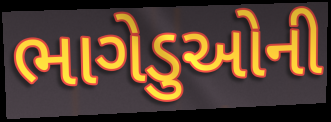
ભાગેડુઓની